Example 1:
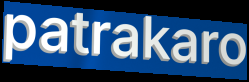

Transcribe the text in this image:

patrakaro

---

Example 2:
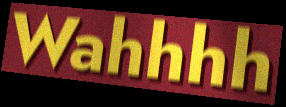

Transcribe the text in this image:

Wahhhh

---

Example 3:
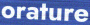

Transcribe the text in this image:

orature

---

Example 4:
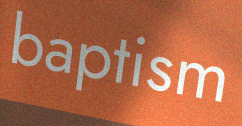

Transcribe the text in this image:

baptism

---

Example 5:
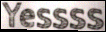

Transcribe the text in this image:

Yessss